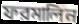
ফরমালিন